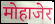
मोहाजेर